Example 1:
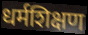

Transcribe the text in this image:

धर्मशिक्षण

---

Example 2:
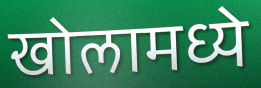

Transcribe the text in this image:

खोलामध्ये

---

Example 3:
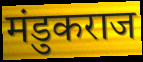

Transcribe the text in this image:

मंडुकराज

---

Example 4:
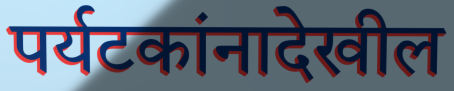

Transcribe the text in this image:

पर्यटकांनादेखील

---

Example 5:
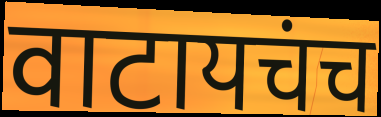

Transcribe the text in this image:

वाटायचंच